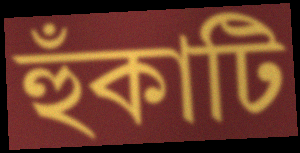
হুঁকাটি